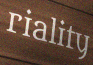
riality